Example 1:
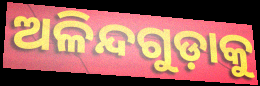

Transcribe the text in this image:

ଅଳିନ୍ଦଗୁଡ଼ାକୁ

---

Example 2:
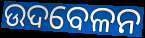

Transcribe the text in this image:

ଉଦବେଳନ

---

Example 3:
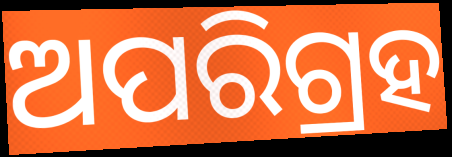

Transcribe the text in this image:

ଅପରିଗ୍ରହ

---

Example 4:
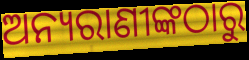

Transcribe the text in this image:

ଅନ୍ୟରାଣୀଙ୍କଠାରୁ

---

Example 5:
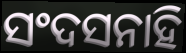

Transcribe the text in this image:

ସଂଦସନାହି